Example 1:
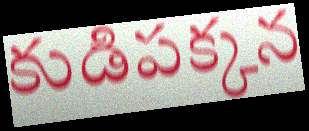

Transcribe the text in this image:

కుడిపక్కన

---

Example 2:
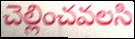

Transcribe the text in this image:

చెల్లించవలసి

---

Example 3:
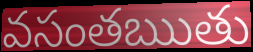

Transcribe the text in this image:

వసంతఋతు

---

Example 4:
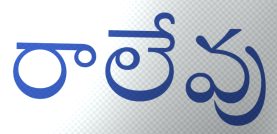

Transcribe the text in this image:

రాలేవు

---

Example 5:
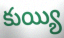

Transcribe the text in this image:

కుయ్యి